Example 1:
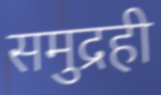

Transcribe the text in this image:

समुद्रही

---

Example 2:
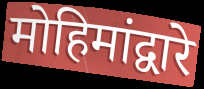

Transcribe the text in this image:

मोहिमांद्वारे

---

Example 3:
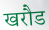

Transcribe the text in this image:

खरौड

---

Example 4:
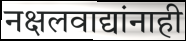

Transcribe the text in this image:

नक्षलवाद्यांनाही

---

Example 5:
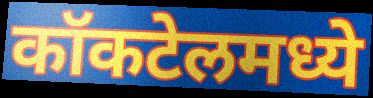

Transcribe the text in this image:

कॉकटेलमध्ये